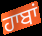
ਹਾਬਾਂ